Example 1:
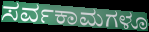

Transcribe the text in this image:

ಸರ್ವಕಾಮಗಳೂ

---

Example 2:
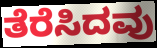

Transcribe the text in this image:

ತೆರೆಸಿದವು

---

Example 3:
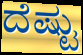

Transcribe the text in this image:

ದೆಷ್ಟು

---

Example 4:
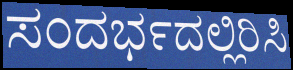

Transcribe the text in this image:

ಸಂದರ್ಭದಲ್ಲಿರಿಸಿ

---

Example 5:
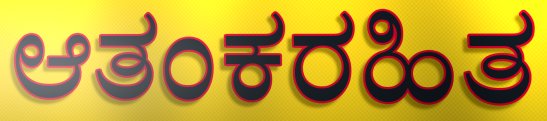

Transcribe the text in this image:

ಆತಂಕರಹಿತ